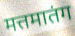
मत्तमातंग